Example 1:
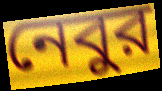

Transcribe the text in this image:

নেবুর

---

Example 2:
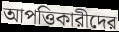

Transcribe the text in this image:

আপত্তিকারীদের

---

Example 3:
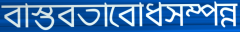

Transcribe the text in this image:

বাস্তবতাবোধসম্পন্ন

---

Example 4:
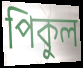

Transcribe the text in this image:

পিকুল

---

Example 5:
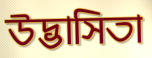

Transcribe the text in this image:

উদ্ভাসিতা